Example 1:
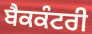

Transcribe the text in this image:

ਬੈਕਕੰਟਰੀ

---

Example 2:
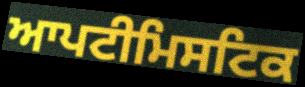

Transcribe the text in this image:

ਆਪਟੀਮਿਸਟਿਕ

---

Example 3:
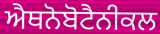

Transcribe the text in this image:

ਐਥਨੋਬੋਟੈਨੀਕਲ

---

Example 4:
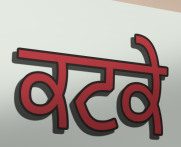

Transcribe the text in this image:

ਕਟਕੇ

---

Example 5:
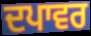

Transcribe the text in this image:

ਦਪਾਵਰ